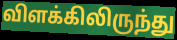
விளக்கிலிருந்து